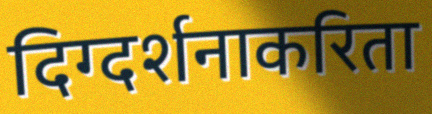
दिग्दर्शनाकरिता